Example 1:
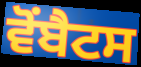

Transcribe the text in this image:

ਵੋਂਬੈਟਸ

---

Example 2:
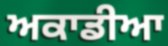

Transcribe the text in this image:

ਅਕਾਡੀਆ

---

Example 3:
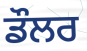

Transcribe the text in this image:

ਡੌਲਰ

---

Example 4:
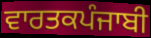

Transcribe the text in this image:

ਵਾਰਤਕਪੰਜਾਬੀ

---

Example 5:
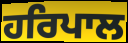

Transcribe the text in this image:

ਹਰਿਪਾਲ